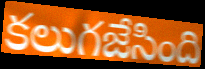
కలుగజేసింది